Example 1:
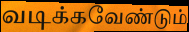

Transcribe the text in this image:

வடிக்கவேண்டும்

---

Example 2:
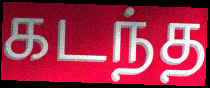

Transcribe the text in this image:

கடந்த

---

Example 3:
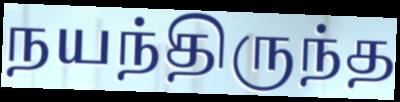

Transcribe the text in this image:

நயந்திருந்த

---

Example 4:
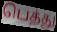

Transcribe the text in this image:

பெத்து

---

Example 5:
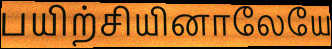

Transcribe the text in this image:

பயிற்சியினாலேயே